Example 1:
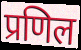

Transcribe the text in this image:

प्रणिल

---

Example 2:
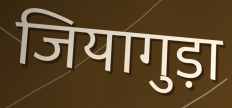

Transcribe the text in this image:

जियागुड़ा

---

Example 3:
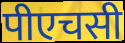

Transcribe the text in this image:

पीएचसी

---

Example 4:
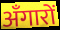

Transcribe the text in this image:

अँगारों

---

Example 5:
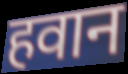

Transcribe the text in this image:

हवान